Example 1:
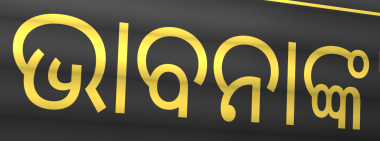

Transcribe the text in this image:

ଭାବନାଙ୍କ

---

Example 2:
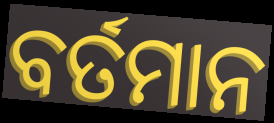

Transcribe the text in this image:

ବର୍ତମାନ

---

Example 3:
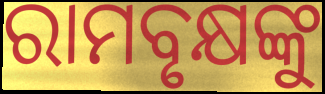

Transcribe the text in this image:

ରାମବୃକ୍ଷଙ୍କୁ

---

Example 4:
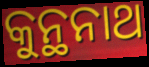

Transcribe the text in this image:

କୁନ୍ଥନାଥ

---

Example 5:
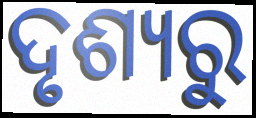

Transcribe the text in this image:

ଦୃଶ୍ୟରୁ